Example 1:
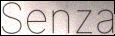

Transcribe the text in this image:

Senza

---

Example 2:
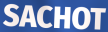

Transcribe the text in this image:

SACHOT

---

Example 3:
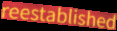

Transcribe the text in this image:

reestablished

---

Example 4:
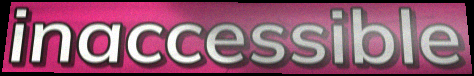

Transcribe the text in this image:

inaccessible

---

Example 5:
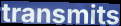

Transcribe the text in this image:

transmits